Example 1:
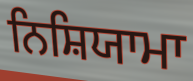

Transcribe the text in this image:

ਨਿਸ਼ਿਯਾਮਾ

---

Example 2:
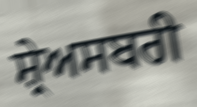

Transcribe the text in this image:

ਸ਼੍ਰੇਅਸਬਰੀ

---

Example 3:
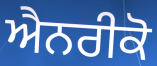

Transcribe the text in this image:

ਐਨਰੀਕੋ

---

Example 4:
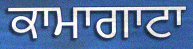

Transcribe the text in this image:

ਕਾਮਾਗਾਟਾ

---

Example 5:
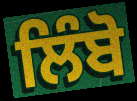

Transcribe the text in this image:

ਲਿੰਬੋ